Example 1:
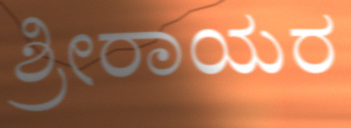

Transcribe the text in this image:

ಶ್ರೀರಾಯರ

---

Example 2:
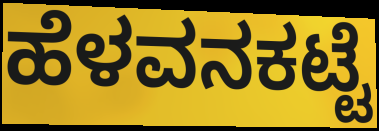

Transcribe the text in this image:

ಹೆಳವನಕಟ್ಟೆ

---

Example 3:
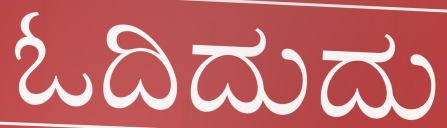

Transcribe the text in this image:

ಓದಿದುದು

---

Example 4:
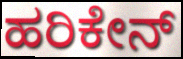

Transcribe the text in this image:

ಹರಿಕೇನ್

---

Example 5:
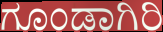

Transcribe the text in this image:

ಗೂಂಡಾಗಿರಿ